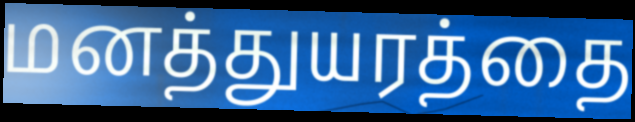
மனத்துயரத்தை